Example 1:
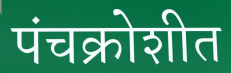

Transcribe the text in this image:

पंचक्रोशीत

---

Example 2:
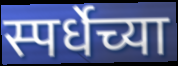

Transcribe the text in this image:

स्पर्धेच्या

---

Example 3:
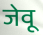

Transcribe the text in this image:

जेवू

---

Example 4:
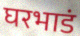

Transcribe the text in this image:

घरभाडं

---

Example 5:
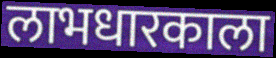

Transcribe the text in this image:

लाभधारकाला